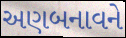
અણબનાવને